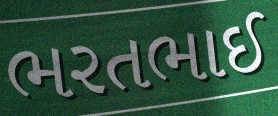
ભરતભાઈ